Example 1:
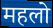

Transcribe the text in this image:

महलो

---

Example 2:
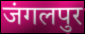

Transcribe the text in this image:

जंगलपुर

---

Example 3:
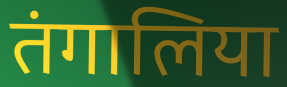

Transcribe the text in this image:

तंगालिया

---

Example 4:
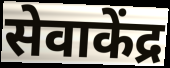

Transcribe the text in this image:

सेवाकेंद्र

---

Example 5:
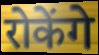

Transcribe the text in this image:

रोकेंगे